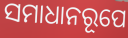
ସମାଧାନରୂପେ